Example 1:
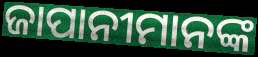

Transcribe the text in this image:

ଜାପାନୀମାନଙ୍କ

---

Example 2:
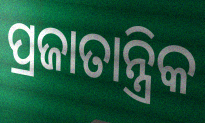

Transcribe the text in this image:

ପ୍ରଜାତାନ୍ତ୍ରିକ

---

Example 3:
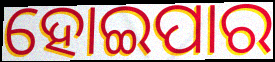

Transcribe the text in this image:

ହୋଇପାର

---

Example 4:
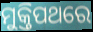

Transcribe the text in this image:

ମୁକ୍ତିପଥରେ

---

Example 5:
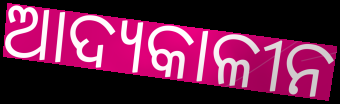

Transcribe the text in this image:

ଆଦ୍ୟକାଳୀନ